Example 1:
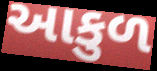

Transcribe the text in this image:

આકુળ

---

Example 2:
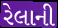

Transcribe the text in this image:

રેલાની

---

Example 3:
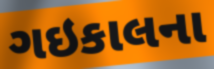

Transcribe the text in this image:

ગઇકાલના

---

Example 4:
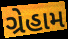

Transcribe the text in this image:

ગ્રેહામ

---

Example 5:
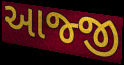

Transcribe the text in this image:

આજ્જી